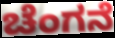
ಚೆಂಗನೆ